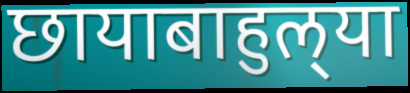
छायाबाहुल्या